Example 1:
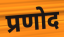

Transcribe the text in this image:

प्रणोद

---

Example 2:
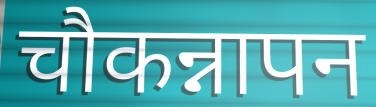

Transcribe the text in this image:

चौकन्नापन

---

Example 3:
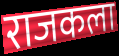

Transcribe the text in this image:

राजकला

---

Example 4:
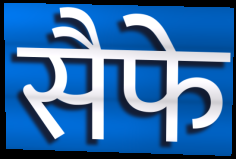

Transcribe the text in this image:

सैफे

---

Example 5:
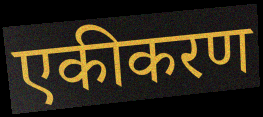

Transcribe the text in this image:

एकीकरण